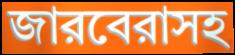
জারবেরাসহ